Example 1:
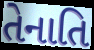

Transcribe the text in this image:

તેનાતિ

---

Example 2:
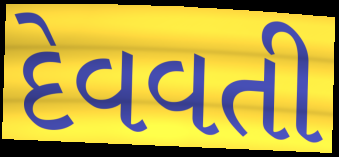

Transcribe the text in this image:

દેવવતી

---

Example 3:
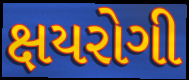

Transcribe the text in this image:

ક્ષયરોગી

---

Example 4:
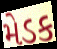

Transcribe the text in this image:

મેડક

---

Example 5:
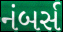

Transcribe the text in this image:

નંબર્સ